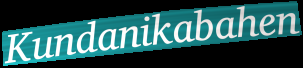
Kundanikabahen